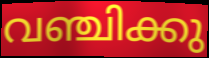
വഞ്ചിക്കു